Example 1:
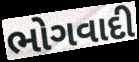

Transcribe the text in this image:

ભોગવાદી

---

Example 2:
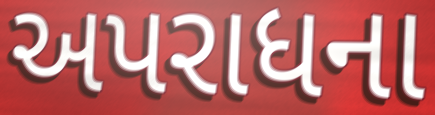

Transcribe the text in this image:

અપરાધના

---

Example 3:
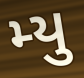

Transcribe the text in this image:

મ્યુ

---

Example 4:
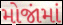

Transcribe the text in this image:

મોજાંમાં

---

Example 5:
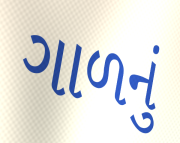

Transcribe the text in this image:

ગાળનું